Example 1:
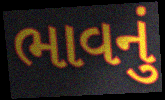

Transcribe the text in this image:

ભાવનું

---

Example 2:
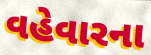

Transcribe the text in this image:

વહેવારના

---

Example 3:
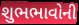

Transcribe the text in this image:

શુભભાવોની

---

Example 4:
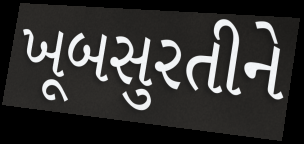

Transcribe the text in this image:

ખૂબસુરતીને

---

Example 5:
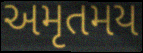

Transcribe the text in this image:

અમૃતમય